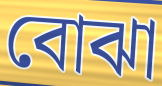
বোঝা